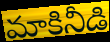
మాకినీడి